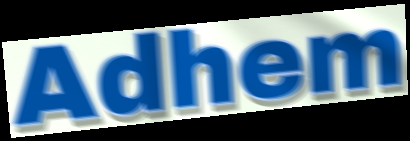
Adhem